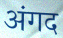
अंगद